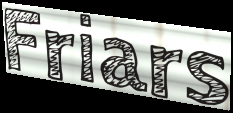
Friars